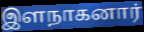
இளநாகனார்